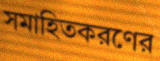
সমাহিতকরণের